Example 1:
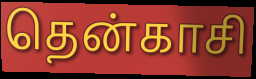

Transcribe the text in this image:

தென்காசி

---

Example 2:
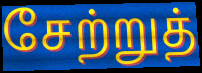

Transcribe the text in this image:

சேற்றுத்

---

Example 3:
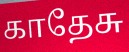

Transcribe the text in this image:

காதேசு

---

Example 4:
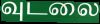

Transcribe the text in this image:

வுடலை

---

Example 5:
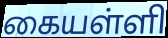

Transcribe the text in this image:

கையள்ளி